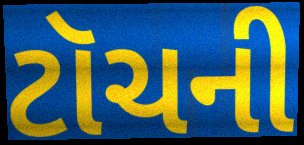
ટૉચની